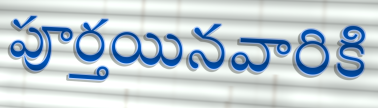
పూర్తయినవారికి